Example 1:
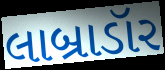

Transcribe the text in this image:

લાબ્રાડૉર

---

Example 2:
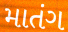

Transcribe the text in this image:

માતંગ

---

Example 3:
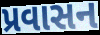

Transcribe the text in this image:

પ્રવાસન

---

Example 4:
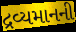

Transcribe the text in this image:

દ્રવ્યમાનની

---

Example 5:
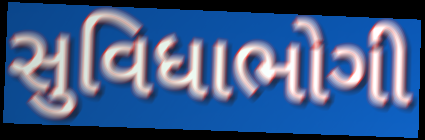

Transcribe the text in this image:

સુવિધાભોગી